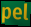
pel